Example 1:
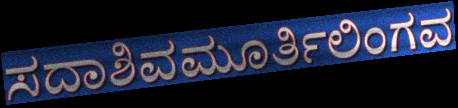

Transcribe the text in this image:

ಸದಾಶಿವಮೂರ್ತಿಲಿಂಗವ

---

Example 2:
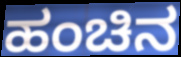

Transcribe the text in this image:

ಹಂಚಿನ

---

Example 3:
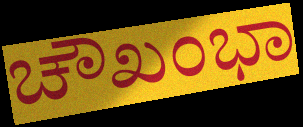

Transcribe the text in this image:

ಚೌಖಂಭಾ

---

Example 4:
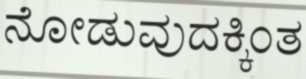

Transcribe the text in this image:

ನೋಡುವುದಕ್ಕಿಂತ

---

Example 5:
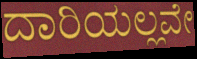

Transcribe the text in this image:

ದಾರಿಯಲ್ಲವೇ